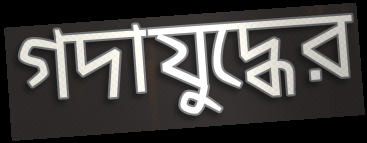
গদাযুদ্ধের